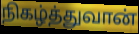
நிகழ்த்துவான்